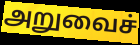
அறுவைச்